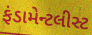
ફંડામેન્ટલીસ્ટ